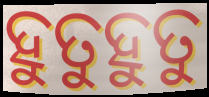
ହୁତୁହୁତୁ